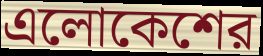
এলোকেশের